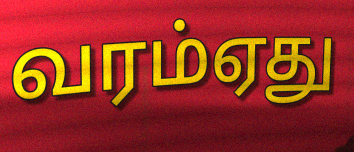
வரம்ஏது